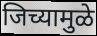
जिच्यामुळे